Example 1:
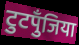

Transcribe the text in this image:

टुटपुँजिया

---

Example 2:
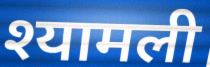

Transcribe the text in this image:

श्यामली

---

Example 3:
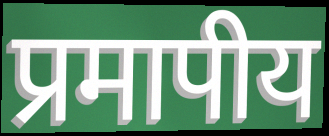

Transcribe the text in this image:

प्रमापीय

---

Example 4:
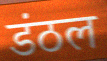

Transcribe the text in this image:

डंठल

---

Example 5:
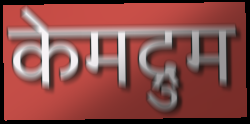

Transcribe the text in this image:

केमद्रुम